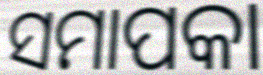
ସମାପକା